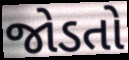
જોડતો